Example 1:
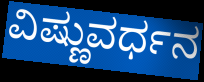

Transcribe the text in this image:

ವಿಷ್ಣುವರ್ಧನ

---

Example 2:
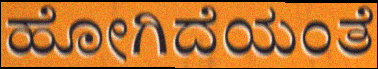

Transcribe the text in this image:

ಹೋಗಿದೆಯಂತೆ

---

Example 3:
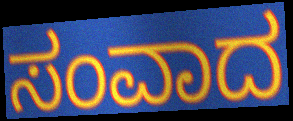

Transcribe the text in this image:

ಸಂವಾದ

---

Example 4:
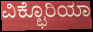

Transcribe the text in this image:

ವಿಕ್ಟೊರಿಯಾ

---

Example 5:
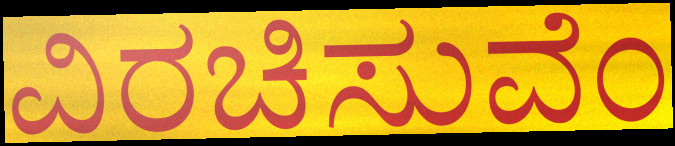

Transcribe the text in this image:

ವಿರಚಿಸುವೆಂ